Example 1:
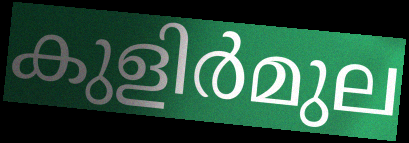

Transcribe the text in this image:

കുളിർമുല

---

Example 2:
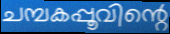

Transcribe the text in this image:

ചമ്പകപ്പൂവിന്റെ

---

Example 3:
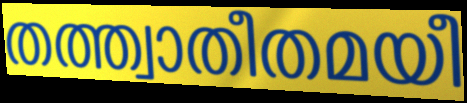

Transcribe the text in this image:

തത്ത്വാതീതമയീ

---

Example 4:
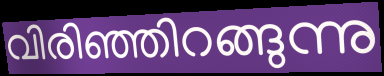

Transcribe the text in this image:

വിരിഞ്ഞിറങ്ങുന്നു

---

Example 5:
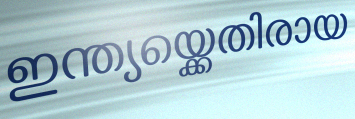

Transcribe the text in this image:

ഇന്ത്യയ്ക്കെതിരായ